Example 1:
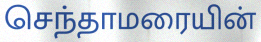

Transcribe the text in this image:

செந்தாமரையின்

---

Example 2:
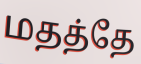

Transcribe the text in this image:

மதத்தே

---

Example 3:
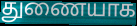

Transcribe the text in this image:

துணையாக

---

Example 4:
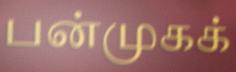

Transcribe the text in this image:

பன்முகக்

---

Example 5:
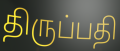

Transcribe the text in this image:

திருப்பதி